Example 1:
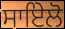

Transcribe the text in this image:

ਸਾਇੇਲੋ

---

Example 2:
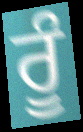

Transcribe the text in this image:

ਰੂੰ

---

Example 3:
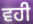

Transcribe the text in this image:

ਵਹੀ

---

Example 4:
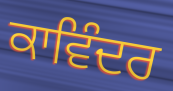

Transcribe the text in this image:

ਕਾਵਿੰਦਰ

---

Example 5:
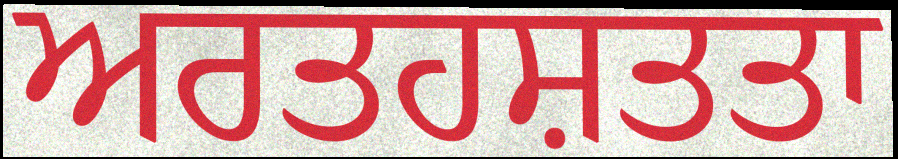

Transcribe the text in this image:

ਅਰਤਹਸ਼ਤਤਾ